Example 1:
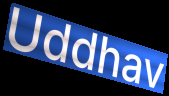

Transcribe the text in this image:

Uddhav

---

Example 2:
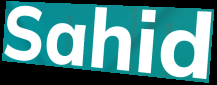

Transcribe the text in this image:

Sahid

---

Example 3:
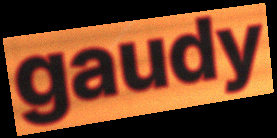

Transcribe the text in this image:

gaudy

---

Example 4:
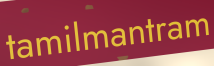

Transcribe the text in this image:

tamilmantram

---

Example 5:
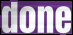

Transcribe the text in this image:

done